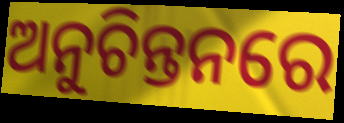
ଅନୁଚିନ୍ତନରେ